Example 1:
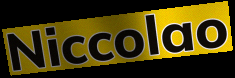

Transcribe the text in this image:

Niccolao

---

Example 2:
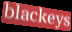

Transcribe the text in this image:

blackeys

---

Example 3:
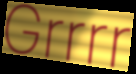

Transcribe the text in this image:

Grrrr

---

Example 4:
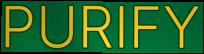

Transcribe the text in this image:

PURIFY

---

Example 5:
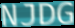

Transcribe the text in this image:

NJDG